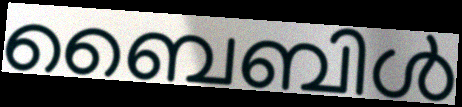
ബൈബിൾ